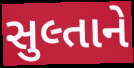
સુલ્તાને